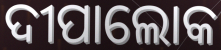
ଦୀପାଲୋକ